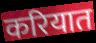
करियात